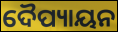
ଦୈପ୍ୟାୟନ